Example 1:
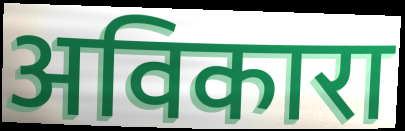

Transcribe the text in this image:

अविकारा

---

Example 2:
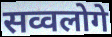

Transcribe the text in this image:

सव्वलोगे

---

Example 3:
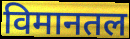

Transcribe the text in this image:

विमानतल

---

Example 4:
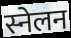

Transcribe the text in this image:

स्नेलन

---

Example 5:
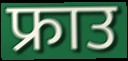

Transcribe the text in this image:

फ्राउ